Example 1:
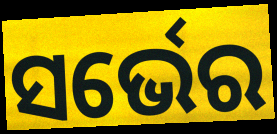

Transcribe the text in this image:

ସର୍ଭେର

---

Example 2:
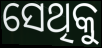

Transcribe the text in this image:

ସେଥିକୁ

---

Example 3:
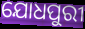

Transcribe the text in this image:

ଯୋଧପୁରୀ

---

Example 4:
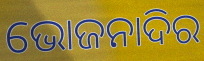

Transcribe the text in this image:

ଭୋଜନାଦିର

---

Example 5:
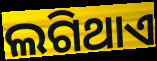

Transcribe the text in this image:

ଲଗିଥାଏ